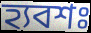
হ্যবশঃ